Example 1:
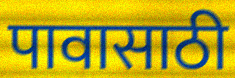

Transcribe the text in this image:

पावासाठी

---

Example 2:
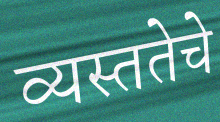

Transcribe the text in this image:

व्यस्ततेचे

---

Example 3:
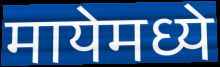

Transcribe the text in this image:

मायेमध्ये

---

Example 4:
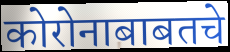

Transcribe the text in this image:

कोरोनाबाबतचे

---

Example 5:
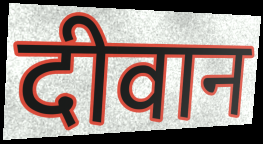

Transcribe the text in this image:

दीवान